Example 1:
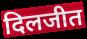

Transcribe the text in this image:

दिलजीत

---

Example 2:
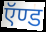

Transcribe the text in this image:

ऍण्ड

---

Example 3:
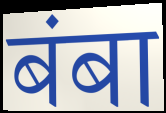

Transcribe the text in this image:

बंबा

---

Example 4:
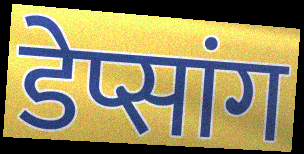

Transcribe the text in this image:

डेप्सांग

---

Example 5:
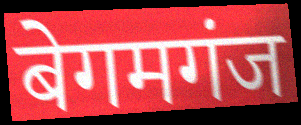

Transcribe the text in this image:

बेगमगंज